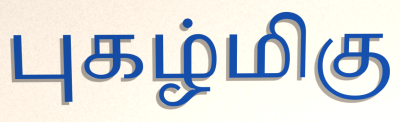
புகழ்மிகு